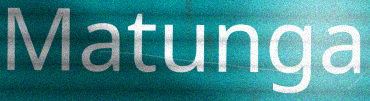
Matunga